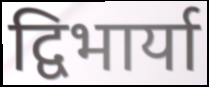
द्विभार्या